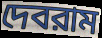
দেবরাম